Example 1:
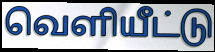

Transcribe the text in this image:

வெளியீட்டு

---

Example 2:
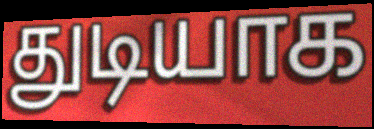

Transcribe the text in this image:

துடியாக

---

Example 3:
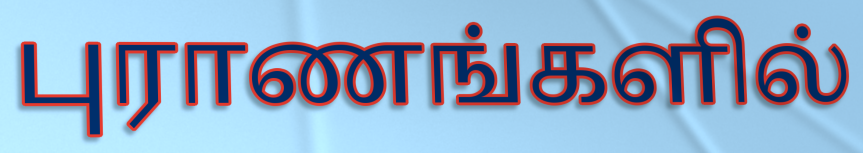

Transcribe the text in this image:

புராணங்களில்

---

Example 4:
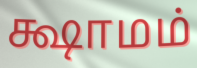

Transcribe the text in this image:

க்ஷாமம்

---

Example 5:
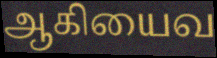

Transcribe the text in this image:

ஆகியைவ